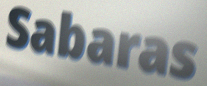
Sabaras